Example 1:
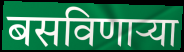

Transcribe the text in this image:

बसविणार्‍या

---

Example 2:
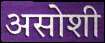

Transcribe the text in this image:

असोशी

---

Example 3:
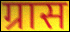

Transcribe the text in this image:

ग्रास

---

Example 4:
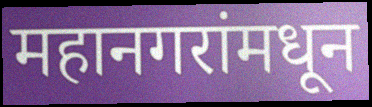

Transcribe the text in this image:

महानगरांमधून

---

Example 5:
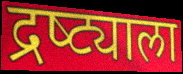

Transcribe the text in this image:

द्रष्ट्याला